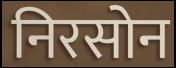
निरसोन